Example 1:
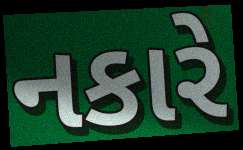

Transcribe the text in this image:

નકારે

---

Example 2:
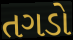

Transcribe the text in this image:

તગડો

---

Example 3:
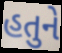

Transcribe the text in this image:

હતુને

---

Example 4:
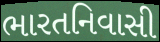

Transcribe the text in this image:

ભારતનિવાસી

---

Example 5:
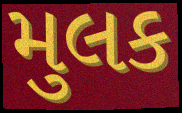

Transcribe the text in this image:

મુલક